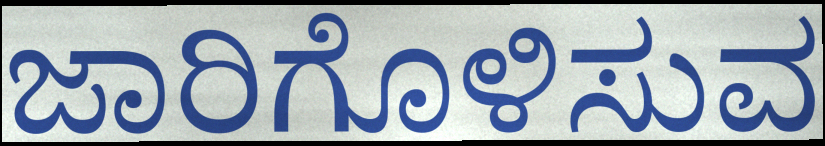
ಜಾರಿಗೊಳಿಸುವ